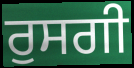
ਰੁਸਗੀ